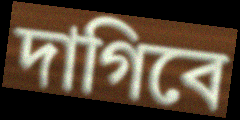
দাগিবে